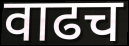
वाढच